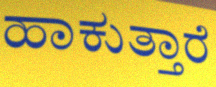
ಹಾಕುತ್ತಾರೆ